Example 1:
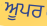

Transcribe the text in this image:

ਅੂਪਰ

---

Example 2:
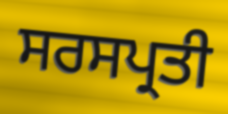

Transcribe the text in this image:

ਸਰਸਪ੍ਰਤੀ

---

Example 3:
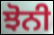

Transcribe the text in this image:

ਝੋਨੀ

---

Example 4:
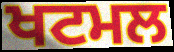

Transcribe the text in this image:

ਖਟਮਲ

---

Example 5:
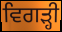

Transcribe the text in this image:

ਵਿਗੜ੍ਹੀ